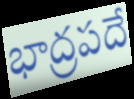
భాద్రపదే